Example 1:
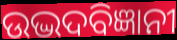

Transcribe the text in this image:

ଉଦ୍ଭଦବିଜ୍ଞାନୀ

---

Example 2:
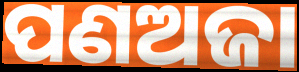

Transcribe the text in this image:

ପଣଅଜା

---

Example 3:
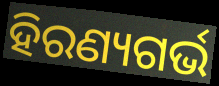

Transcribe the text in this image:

ହିରଣ୍ୟଗର୍ଭ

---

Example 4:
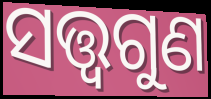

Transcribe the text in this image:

ସତ୍ତ୍ୱଗୁଣ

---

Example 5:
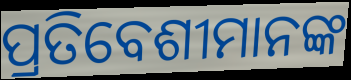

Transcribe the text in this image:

ପ୍ରତିବେଶୀମାନଙ୍କ